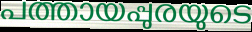
പത്തായപ്പുരയുടെ